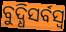
ବୁଦ୍ଧିସର୍ବସ୍ୱ